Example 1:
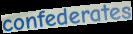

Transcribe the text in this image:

confederates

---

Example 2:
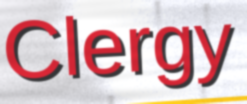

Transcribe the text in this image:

Clergy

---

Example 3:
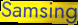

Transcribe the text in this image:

Samsing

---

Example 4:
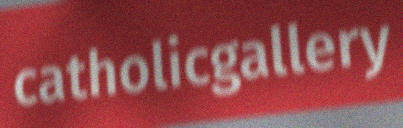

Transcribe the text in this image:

catholicgallery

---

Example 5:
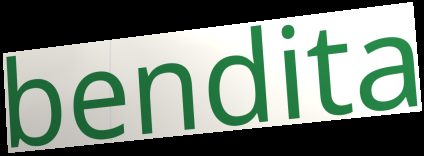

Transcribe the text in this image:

bendita